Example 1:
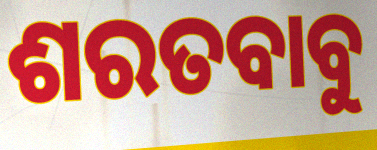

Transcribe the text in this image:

ଶରତବାବୁ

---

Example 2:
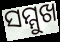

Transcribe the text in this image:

ସମ୍ମୁଖ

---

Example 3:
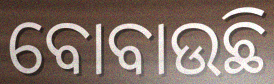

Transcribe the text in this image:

ବୋବାଉଛି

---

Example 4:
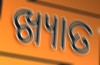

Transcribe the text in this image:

ଖ୍ୟାତ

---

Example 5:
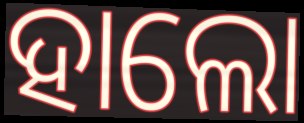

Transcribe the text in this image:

ହାଲୋ